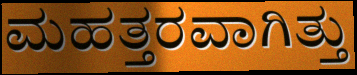
ಮಹತ್ತರವಾಗಿತ್ತು